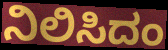
ನಿಲಿಸಿದಂ